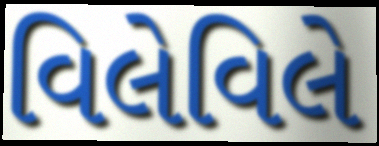
વિલેવિલે